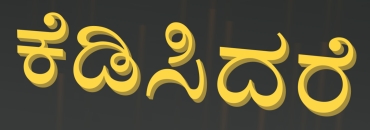
ಕೆಡಿಸಿದರೆ